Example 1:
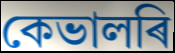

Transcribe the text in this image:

কেভালৰি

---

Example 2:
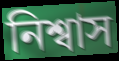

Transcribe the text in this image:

নিশ্বাস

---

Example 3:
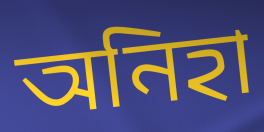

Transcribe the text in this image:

অনিহা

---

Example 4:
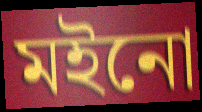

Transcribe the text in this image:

মইনো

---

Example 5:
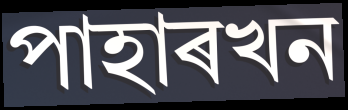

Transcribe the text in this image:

পাহাৰখন